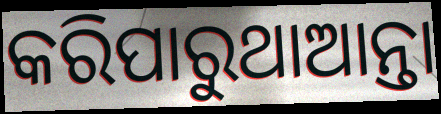
କରିପାରୁଥାଆନ୍ତା